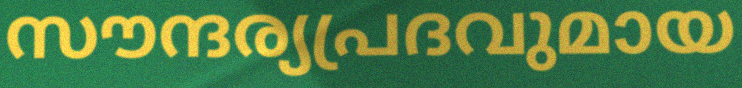
സൗന്ദര്യപ്രദവുമായ